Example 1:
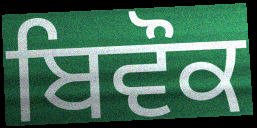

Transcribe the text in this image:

ਬਿਵੌਕ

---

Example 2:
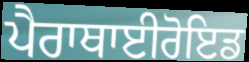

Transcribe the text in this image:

ਪੈਰਾਥਾਈਰੋਇਡ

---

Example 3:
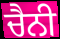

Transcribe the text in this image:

ਚੈਨੀ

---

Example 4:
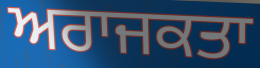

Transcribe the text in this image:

ਅਰਾਜਕਤਾ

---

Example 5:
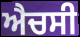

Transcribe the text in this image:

ਐਚਸੀ